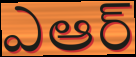
ఎఆర్